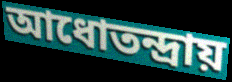
আধোতন্দ্রায়